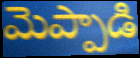
మెప్పాడి